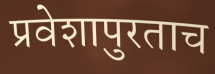
प्रवेशापुरताच